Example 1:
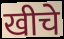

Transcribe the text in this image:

खीचे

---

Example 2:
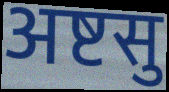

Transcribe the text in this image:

अष्टसु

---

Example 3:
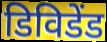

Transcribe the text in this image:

डिविडेंड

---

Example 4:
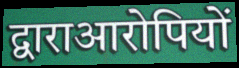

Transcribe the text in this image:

द्वाराआरोपियों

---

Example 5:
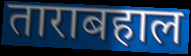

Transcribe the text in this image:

ताराबहाल